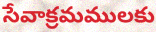
సేవాక్రమములకు